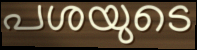
പശയുടെ